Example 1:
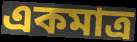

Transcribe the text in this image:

একমাত্র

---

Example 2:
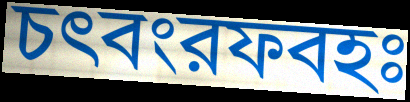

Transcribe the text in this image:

চৎবংরফবহঃ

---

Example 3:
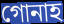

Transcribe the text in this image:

গোনাহ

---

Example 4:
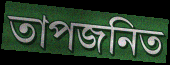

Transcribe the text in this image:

তাপজনিত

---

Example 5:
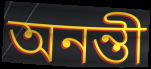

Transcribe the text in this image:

অনন্তী